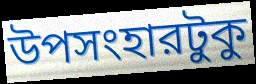
উপসংহারটুকু